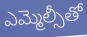
ఎమ్మెల్సీతో